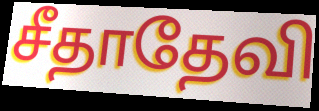
சீதாதேவி